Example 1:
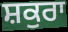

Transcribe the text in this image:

ਸ਼ਕੁਰਾ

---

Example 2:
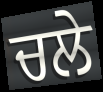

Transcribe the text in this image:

ਚਲੇ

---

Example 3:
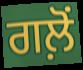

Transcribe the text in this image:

ਗਲ਼ੋਂ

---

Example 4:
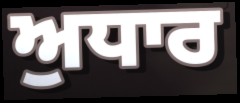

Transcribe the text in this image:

ਅੁਧਾਰ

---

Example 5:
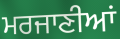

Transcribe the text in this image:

ਮਰਜਾਣੀਆਂ